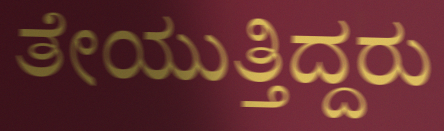
ತೇಯುತ್ತಿದ್ದರು